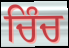
ਚਿੰਚ